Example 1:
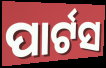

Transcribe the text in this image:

ପାର୍ଟସ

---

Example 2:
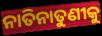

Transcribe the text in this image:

ନାତିନାତୁଣୀକୁ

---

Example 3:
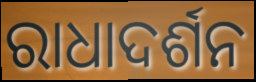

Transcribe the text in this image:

ରାଧାଦର୍ଶନ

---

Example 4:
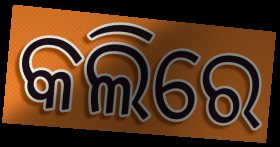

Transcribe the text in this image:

କଲିରେ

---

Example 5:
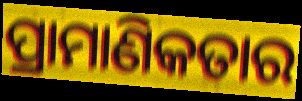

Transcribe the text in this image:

ପ୍ରାମାଣିକତାର